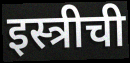
इस्त्रीची